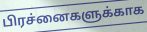
பிரச்னைகளுக்காக